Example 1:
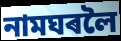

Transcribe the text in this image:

নামঘৰলৈ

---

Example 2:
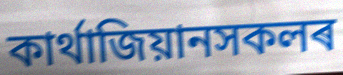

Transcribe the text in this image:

কাৰ্থাজিয়ানসকলৰ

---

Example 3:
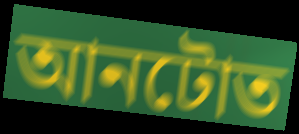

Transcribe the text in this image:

আনটোত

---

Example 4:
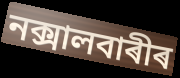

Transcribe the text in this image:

নক্সালবাৰীৰ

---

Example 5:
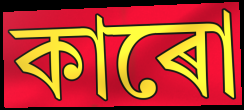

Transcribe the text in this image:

কাৰো